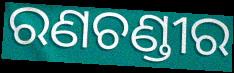
ରଣଚଣ୍ଡୀର